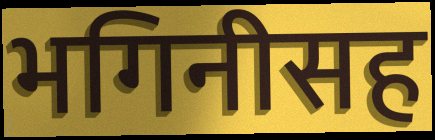
भगिनीसह